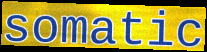
somatic